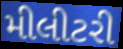
મીલીટરી